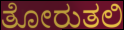
ತೋರುತಲಿ